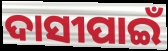
ଦାସୀପାଇଁ